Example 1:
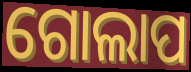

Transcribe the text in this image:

ଗୋଲାପ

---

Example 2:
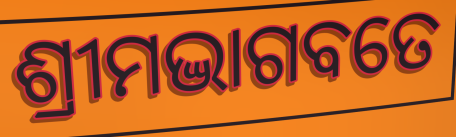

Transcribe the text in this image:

ଶ୍ରୀମଦ୍ଭାଗବତେ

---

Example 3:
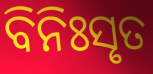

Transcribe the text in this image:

ବିନିଃସୃତ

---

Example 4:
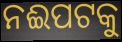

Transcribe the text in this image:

ନଈପଟକୁ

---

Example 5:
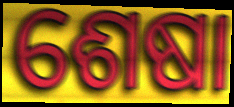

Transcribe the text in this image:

ଶେଷା